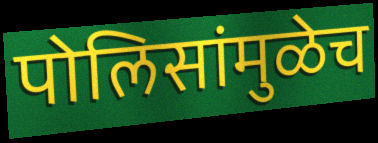
पोलिसांमुळेच